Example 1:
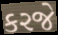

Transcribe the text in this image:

કરજે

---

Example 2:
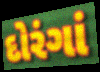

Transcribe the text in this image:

દોરંગાં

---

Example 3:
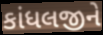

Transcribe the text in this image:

કાંધલજીને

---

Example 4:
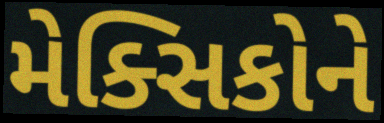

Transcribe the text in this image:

મેક્સિકોને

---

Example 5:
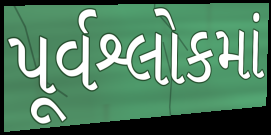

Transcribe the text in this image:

પૂર્વશ્લોકમાં